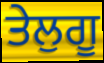
ਤੇਲੁਗੂ